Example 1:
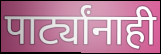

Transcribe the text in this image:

पार्ट्यांनाही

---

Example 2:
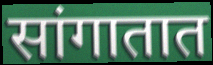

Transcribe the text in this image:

सांगातात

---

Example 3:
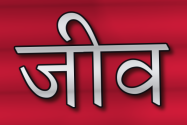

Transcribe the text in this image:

जीव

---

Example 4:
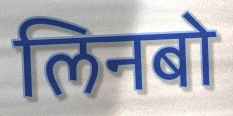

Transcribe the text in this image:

लिनबो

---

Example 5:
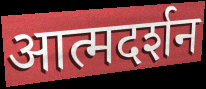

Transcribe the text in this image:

आत्मदर्शन